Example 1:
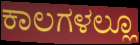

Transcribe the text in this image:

ಕಾಲಗಳಲ್ಲೂ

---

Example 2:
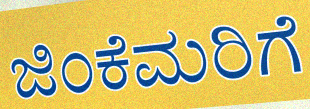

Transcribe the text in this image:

ಜಿಂಕೆಮರಿಗೆ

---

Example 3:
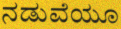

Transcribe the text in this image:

ನಡುವೆಯೂ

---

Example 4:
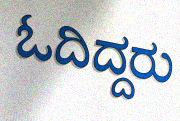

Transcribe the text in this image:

ಓದಿದ್ದರು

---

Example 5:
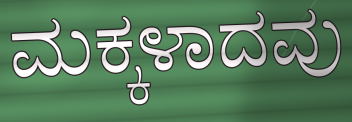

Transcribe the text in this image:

ಮಕ್ಕಳಾದವು